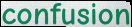
confusion